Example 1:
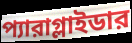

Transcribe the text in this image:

প্যারাগ্লাইডার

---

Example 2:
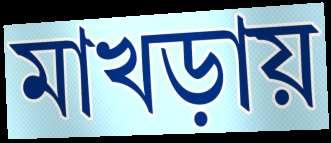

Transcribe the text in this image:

মাখড়ায়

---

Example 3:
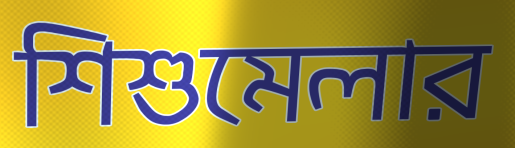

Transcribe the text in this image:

শিশুমেলার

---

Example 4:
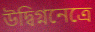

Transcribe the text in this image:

উদ্বিগ্ননেত্রে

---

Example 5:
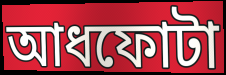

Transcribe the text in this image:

আধফোটা